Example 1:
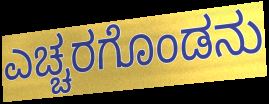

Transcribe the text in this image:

ಎಚ್ಚರಗೊಂಡನು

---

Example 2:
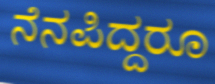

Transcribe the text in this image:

ನೆನಪಿದ್ದರೂ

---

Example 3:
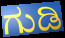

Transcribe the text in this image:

ಗುಡಿ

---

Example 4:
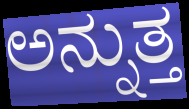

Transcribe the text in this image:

ಅನ್ನುತ್ತ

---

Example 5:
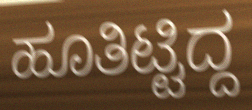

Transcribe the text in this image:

ಹೂತಿಟ್ಟಿದ್ದ